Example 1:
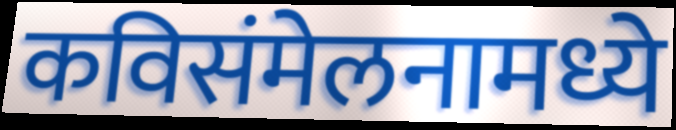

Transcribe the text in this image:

कविसंमेलनामध्ये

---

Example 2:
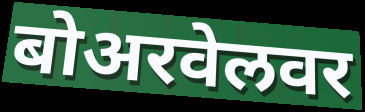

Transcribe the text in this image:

बोअरवेलवर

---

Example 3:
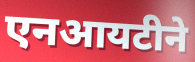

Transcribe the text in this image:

एनआयटीने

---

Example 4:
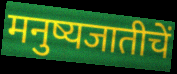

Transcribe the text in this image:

मनुष्यजातीचें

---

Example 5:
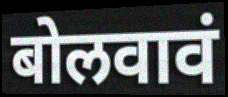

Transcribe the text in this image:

बोलवावं